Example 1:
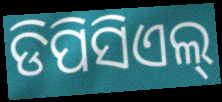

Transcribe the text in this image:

ଡିପିସିଏଲ୍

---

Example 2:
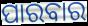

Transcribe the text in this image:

ପାରବାର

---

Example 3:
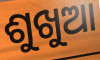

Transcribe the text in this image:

ଶୁଖୁଆ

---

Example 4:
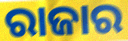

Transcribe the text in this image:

ରାଜାର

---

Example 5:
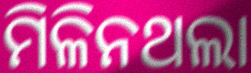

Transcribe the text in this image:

ମିଳିନଥଲା